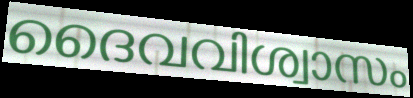
ദൈവവിശ്വാസം